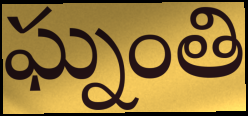
ఘ్నంతి